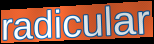
radicular